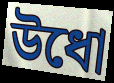
উধো